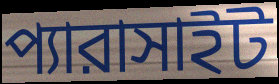
প্যারাসাইট